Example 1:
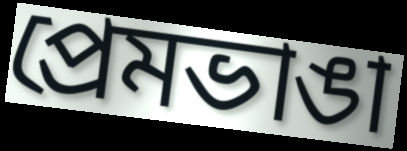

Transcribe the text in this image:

প্রেমভাঙা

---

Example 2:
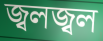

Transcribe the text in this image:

জ্বলজ্বল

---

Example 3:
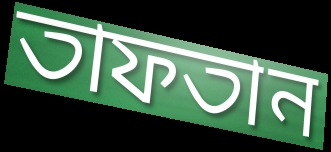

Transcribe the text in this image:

তাফতান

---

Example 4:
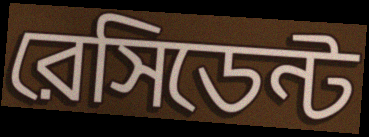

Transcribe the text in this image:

রেসিডেন্ট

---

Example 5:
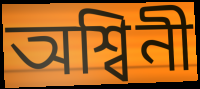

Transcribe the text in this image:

অশ্বিনী